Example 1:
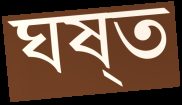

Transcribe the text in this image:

ঘষ্ত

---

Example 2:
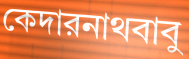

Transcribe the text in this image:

কেদারনাথবাবু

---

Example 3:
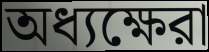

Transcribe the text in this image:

অধ্যক্ষেরা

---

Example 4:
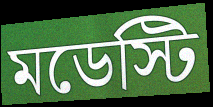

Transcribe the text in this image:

মডেস্টি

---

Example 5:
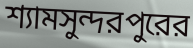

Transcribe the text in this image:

শ্যামসুন্দরপুরের